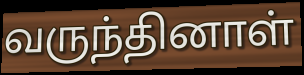
வருந்தினாள்